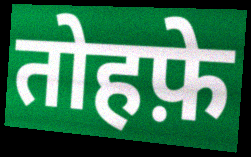
तोहफ़े